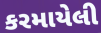
કરમાયેલી